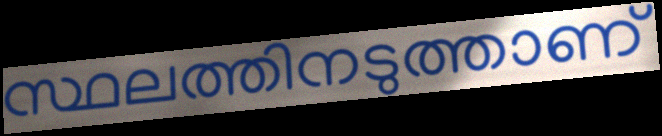
സ്ഥലത്തിനടുത്താണ്